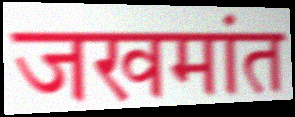
जखमांत